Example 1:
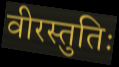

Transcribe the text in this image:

वीरस्तुतिः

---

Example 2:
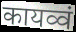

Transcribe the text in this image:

कायव्वं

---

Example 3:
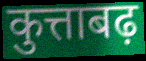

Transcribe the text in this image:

कुत्ताबढ़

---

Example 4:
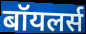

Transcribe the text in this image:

बॉयलर्स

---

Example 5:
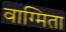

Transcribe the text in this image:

वाग्मिता